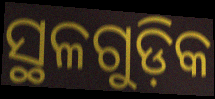
ସ୍ଥଳଗୁଡ଼ିକ